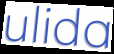
ulida